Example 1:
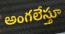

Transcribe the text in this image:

అంగలేస్తూ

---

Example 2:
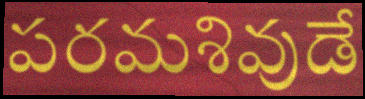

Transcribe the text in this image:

పరమశివుడే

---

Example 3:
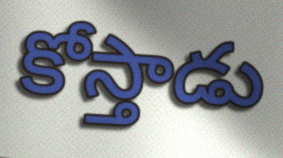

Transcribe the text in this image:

కోస్తాడు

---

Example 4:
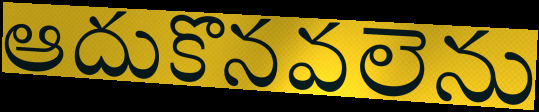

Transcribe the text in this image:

ఆదుకొనవలెను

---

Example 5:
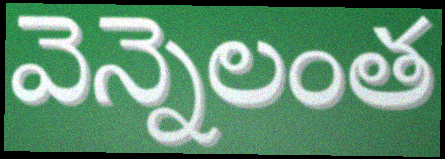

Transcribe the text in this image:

వెన్నెలంత